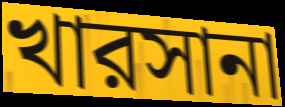
খারসানা